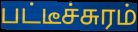
பட்டீச்சுரம்